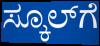
ಸ್ಕೂಲ್‌ಗೆ